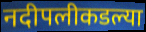
नदीपलीकडल्या